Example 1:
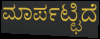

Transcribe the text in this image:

ಮಾರ್ಪಟ್ಟಿದೆ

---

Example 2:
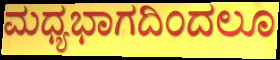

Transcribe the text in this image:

ಮಧ್ಯಭಾಗದಿಂದಲೂ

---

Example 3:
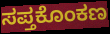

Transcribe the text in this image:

ಸಪ್ತಕೊಂಕಣ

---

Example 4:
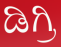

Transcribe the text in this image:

ಡಿಗ್ರಿ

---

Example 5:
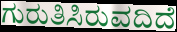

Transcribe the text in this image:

ಗುರುತಿಸಿರುವದಿದೆ